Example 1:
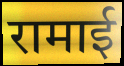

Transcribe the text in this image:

रामाई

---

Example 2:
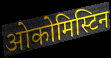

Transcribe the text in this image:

ओकोमिस्टिन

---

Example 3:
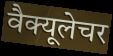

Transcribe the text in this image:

वैक्यूलेचर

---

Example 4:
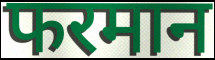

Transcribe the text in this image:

फरमान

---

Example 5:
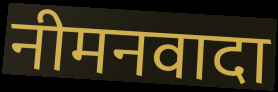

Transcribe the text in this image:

नीमनवादा